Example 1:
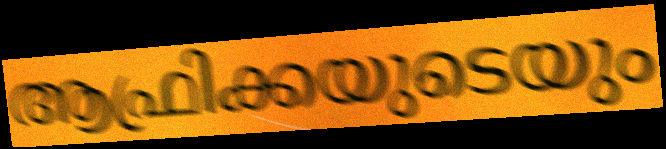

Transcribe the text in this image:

ആഫ്രിക്കയുടെയും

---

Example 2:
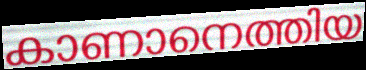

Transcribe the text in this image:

കാണാനെത്തിയ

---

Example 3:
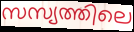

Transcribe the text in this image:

സസ്യത്തിലെ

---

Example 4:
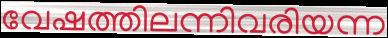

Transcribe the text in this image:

വേഷത്തിലന്നിവരിയന്ന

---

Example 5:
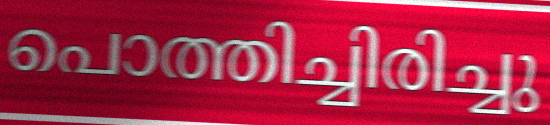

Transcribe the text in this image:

പൊത്തിച്ചിരിച്ചു